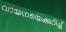
വായനയെക്കുറിച്ച്